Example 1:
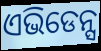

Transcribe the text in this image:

ଏଭିଡେନ୍ସ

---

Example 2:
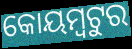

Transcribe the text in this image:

କୋୟମ୍ବଟୁର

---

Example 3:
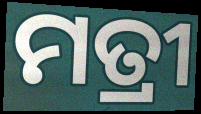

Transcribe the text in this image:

ମତ୍ରୀ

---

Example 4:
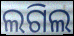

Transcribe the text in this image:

ଲଗିଲ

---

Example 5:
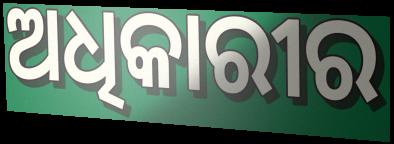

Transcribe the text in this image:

ଅଧିକାରୀର